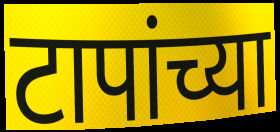
टापांच्या